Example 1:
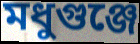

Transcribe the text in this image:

মধুগুঞ্জে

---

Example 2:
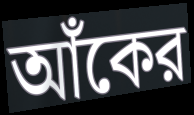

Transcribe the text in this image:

আঁকের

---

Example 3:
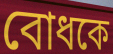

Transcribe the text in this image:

বোধকে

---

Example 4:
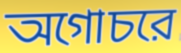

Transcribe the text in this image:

অগোচরে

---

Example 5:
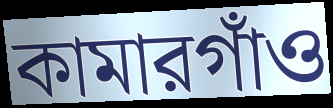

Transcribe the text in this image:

কামারগাঁও